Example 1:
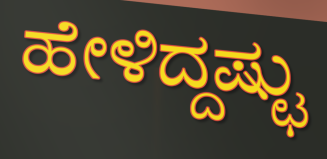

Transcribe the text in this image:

ಹೇಳಿದ್ದಷ್ಟು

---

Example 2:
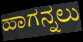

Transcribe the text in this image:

ಹಾಗನ್ನಲು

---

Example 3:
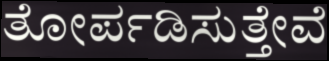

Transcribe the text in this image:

ತೋರ್ಪಡಿಸುತ್ತೇವೆ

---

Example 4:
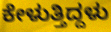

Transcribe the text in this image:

ಕೇಳುತ್ತಿದ್ದಳು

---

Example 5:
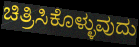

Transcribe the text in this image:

ಚಿತ್ರಿಸಿಕೊಳ್ಳುವುದು